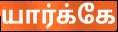
யார்க்கே